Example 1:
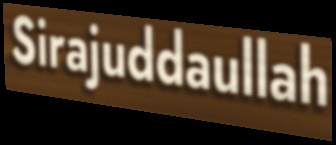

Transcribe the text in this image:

Sirajuddaullah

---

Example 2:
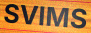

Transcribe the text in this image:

SVIMS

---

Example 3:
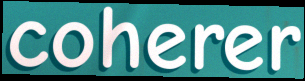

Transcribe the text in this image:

coherer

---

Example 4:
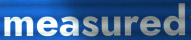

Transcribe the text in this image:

measured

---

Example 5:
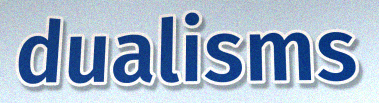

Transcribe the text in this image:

dualisms